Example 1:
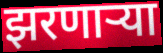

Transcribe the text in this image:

झरणाऱ्या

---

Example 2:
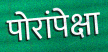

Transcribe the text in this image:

पोरांपेक्षा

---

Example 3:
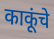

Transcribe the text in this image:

काकूंचे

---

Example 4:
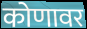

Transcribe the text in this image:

कोणावर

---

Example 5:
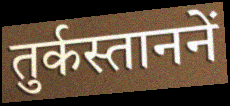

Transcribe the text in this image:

तुर्कस्ताननें